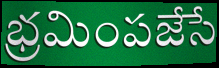
భ్రమింపజేసే